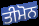
ਤੀਮੋਨ